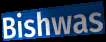
Bishwas